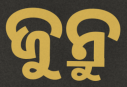
ଜୁନ୍ରୁ